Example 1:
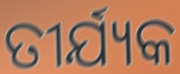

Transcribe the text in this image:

ତୀର୍ଯ୍ୟକ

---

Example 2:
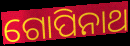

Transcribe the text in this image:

ଗୋପିନାଥ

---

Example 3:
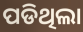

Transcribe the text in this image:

ପଡିଥିଲା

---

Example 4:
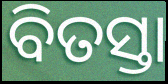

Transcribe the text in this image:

ବିତସ୍ତା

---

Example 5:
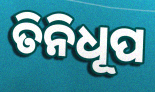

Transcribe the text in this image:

ତିନିଧୂପ